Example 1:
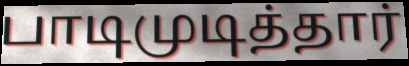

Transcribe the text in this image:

பாடிமுடித்தார்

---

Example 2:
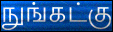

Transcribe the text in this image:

நுங்கட்கு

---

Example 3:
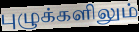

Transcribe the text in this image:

புழுக்களிலும்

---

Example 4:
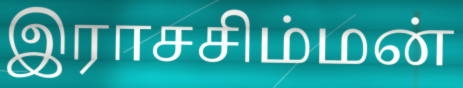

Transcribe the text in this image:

இராசசிம்மன்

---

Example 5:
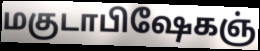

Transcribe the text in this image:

மகுடாபிஷேகஞ்